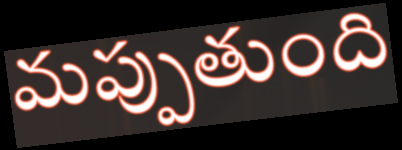
మప్పుతుంది